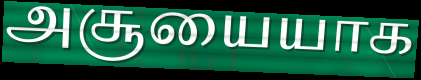
அசூயையாக